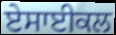
ਏਸਾਈਕਲ